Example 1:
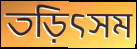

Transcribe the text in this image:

তড়িৎসম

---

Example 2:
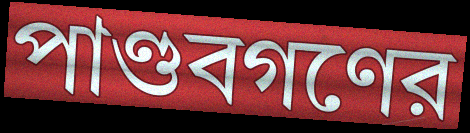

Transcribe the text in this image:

পাণ্ডবগণের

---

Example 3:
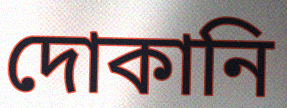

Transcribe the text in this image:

দোকানি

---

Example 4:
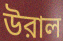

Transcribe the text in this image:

উরাল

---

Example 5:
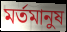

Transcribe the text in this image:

মর্তমানুষ